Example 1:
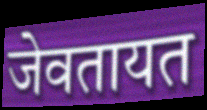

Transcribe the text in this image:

जेवतायत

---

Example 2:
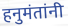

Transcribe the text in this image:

हनुमंतांनी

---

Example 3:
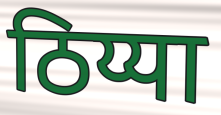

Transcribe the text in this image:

ठिय्या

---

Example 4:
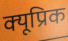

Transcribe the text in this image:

क्यूप्रिक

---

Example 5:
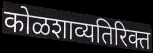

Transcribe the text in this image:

कोळशाव्यतिरिक्त